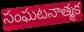
సంఘటనాత్మక